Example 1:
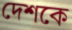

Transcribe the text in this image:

দেশকে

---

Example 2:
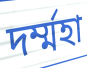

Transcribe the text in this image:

দৰ্ম্মহা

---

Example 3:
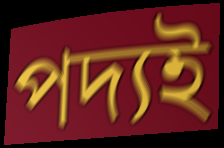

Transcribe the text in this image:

পদ্যই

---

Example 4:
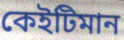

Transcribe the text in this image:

কেইটিমান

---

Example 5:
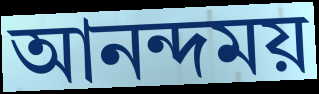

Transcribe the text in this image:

আনন্দময়